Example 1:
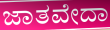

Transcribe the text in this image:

ಜಾತವೇದಾ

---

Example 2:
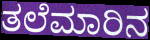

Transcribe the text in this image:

ತಲೆಮಾರಿನ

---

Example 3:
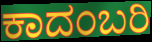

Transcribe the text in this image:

ಕಾದಂಬರಿ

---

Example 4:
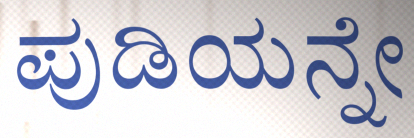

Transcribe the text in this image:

ಪುಡಿಯನ್ನೇ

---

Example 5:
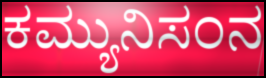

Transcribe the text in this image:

ಕಮ್ಯುನಿಸಂನ